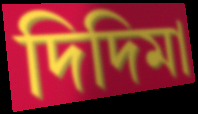
দিদিমা